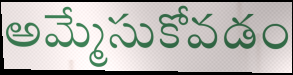
అమ్మేసుకోవడం